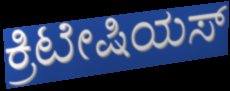
ಕ್ರಿಟೇಷಿಯಸ್